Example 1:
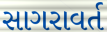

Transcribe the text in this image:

સાગરાવર્ત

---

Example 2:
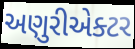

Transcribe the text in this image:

અણુરીએક્ટર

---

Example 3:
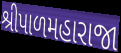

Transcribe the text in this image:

શ્રીપાળમહારાજા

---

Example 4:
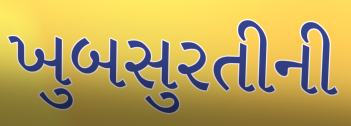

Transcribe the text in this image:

ખુબસુરતીની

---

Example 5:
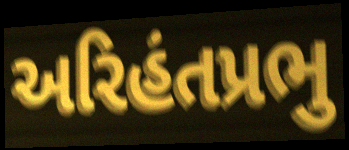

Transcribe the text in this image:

અરિહંતપ્રભુ